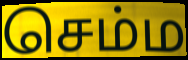
செம்ம